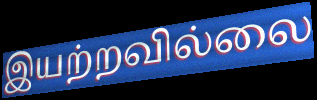
இயற்றவில்லை